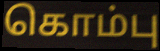
கொம்பு